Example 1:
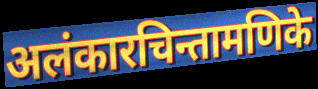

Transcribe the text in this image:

अलंकारचिन्तामणिके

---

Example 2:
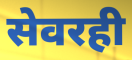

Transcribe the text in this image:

सेवरही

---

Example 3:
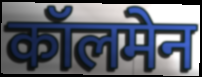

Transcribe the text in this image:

कॉलमेन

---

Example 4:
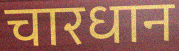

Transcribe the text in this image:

चारधान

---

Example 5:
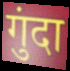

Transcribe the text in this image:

गुंदा